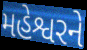
મહેશ્વરને